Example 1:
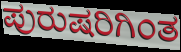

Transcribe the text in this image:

ಪುರುಷರಿಗಿಂತ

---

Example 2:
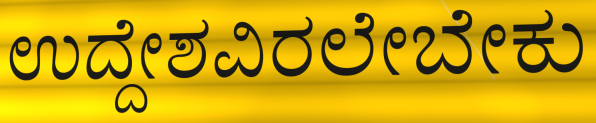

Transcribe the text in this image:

ಉದ್ದೇಶವಿರಲೇಬೇಕು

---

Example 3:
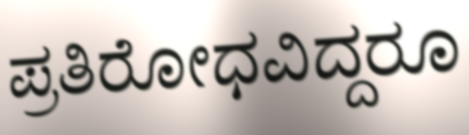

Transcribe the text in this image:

ಪ್ರತಿರೋಧವಿದ್ದರೂ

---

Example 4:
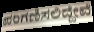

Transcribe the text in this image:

ಪರಿಗಣಿಸಲಿದ್ದೇವೆ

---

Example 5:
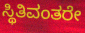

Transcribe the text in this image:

ಸ್ಥಿತಿವಂತರೇ